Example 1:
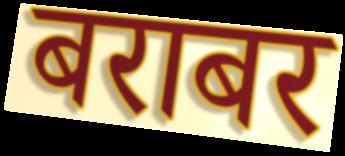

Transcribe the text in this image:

बराबर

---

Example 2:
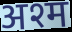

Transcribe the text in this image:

अश्म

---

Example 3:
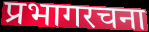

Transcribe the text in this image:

प्रभागरचना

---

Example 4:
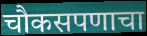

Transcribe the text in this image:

चौकसपणाचा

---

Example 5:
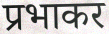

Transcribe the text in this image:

प्रभाकर